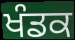
ਖੰਡਕ